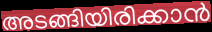
അടങ്ങിയിരിക്കാൻ